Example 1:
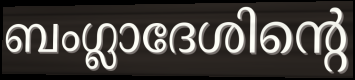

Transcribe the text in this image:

ബംഗ്ലാദേശിന്റെ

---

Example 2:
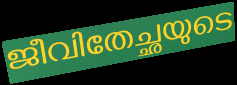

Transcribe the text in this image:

ജീവിതേച്ഛയുടെ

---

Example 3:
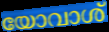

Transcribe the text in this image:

യോവാശ്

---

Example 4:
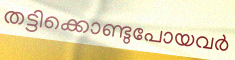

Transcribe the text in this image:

തട്ടിക്കൊണ്ടുപോയവർ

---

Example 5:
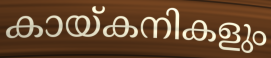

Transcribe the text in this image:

കായ്കനികളും